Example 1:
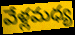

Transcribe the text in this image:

వేళ్లమధ్య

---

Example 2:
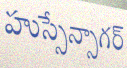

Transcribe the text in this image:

హుస్సేన్సాగర్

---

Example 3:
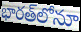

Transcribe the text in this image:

భారత్‌లోనూ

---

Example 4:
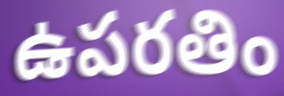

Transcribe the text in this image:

ఉపరతిం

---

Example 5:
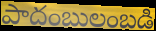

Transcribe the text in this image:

పాదంబులంబడి